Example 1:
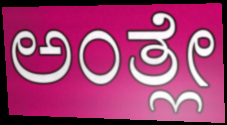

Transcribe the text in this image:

ಅಂತ್ಲೇ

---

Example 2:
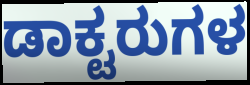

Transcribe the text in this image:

ಡಾಕ್ಟರುಗಳ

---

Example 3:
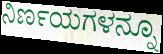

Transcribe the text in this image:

ನಿರ್ಣಯಗಳನ್ನೂ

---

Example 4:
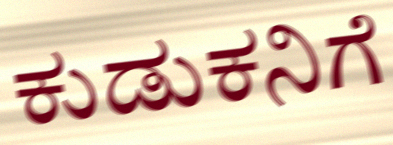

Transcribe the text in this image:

ಕುಡುಕನಿಗೆ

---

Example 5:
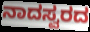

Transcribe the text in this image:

ನಾದಸ್ವರದ